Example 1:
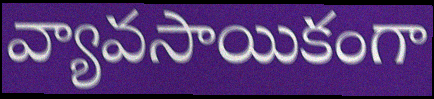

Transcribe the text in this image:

వ్యావసాయికంగా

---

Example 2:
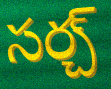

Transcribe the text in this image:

సర్చ్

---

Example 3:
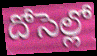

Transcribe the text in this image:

దోసెల్లో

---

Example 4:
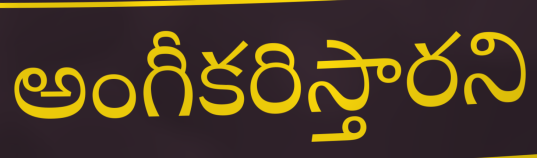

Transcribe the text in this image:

అంగీకరిస్తారని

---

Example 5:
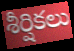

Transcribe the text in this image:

శీర్షికలు